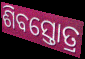
ଶିବସ୍ତୋତ୍ର